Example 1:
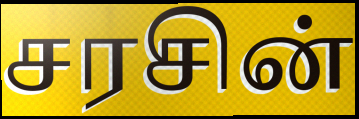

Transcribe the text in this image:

சரசின்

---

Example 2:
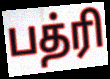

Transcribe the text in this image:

பத்ரி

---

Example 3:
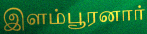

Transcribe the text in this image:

இளம்பூரனார்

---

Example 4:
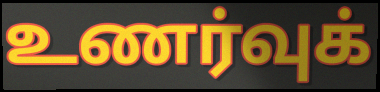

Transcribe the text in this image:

உணர்வுக்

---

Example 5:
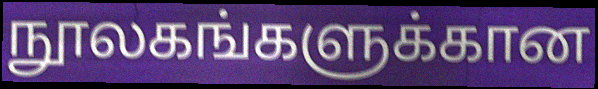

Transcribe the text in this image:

நூலகங்களுக்கான